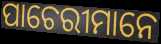
ପାଚେରୀମାନେ